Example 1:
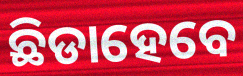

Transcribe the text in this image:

ଛିଡାହେବେ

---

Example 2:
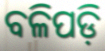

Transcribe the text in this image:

ବଳିପଡ଼ି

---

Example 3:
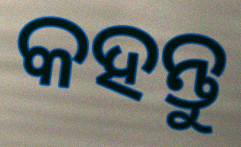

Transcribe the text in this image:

କହନ୍ତୁ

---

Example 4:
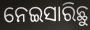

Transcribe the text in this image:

ନେଇସାରିଛୁ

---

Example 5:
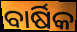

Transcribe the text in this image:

ବାର୍ଷିକ